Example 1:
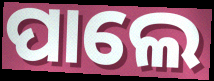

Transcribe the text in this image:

ପାଲେ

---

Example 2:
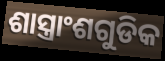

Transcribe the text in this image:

ଶାସ୍ତ୍ରାଂଶଗୁଡିକ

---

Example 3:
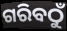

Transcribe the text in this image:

ଗରିବଠୁଁ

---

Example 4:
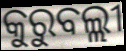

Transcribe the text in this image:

କୁରୁବଲ୍ଲୀ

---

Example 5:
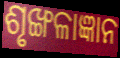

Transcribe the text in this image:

ଶୃଙ୍ଖଳାଜ୍ଞାନ